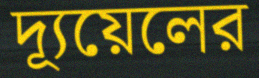
দ্যূয়েলের